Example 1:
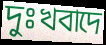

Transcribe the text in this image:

দুঃখবাদে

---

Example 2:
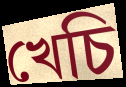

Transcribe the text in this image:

খেচি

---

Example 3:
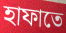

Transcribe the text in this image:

হাফাতে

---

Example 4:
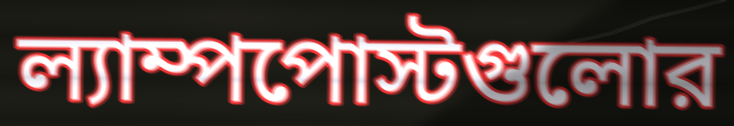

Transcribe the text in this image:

ল্যাম্পপোস্টগুলোর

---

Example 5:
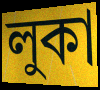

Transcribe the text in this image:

লুকা